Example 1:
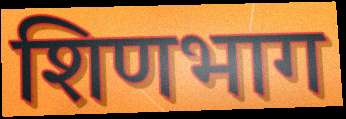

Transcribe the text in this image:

शिणभाग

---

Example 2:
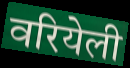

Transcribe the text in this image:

वरियेली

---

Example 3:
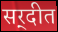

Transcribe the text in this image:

सर्दीत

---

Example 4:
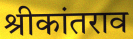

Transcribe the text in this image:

श्रीकांतराव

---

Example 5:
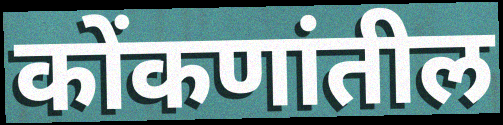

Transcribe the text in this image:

कोंकणांतील